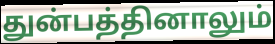
துன்பத்தினாலும்